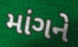
માંગને